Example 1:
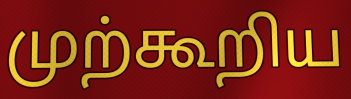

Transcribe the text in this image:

முற்கூறிய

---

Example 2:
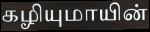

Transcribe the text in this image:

கழியுமாயின்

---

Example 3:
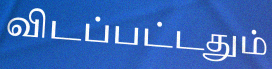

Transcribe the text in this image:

விடப்பட்டதும்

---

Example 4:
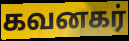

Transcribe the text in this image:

கவனகர்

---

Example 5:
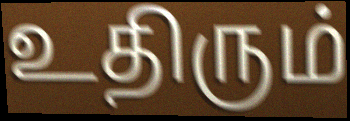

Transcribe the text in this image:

உதிரும்